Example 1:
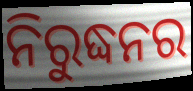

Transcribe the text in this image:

ନିରୁଦ୍ଧନର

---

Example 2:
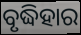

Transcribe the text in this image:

ବୃଦ୍ଧିହାର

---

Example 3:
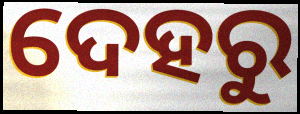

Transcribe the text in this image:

ଦେହରୁ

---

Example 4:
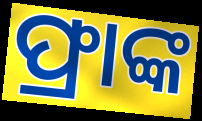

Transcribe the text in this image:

ଫ୍ରାଙ୍କ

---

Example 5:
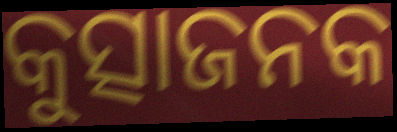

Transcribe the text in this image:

କୁତ୍ସାଜନକ